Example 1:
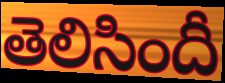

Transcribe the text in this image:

తెలిసిందీ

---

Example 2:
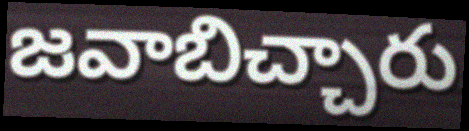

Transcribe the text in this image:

జవాబిచ్చారు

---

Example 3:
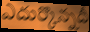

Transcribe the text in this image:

ఎదుర్కొన్నదీ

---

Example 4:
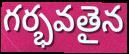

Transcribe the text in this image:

గర్భవతైన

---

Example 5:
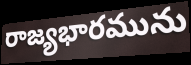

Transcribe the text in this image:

రాజ్యభారమును